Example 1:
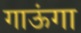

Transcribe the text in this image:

गाऊंगा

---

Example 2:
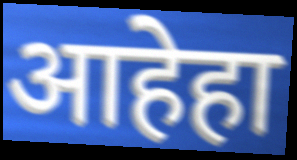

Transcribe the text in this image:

आहेहा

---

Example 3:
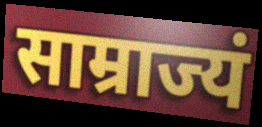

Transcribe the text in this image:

साम्राज्यं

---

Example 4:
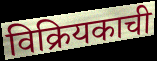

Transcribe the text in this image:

विक्रियकाची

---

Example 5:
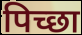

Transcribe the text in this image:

पिच्छा